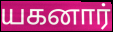
யகனார்